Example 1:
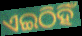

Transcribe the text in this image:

ଏଇଠିହିଁ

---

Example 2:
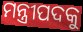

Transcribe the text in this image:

ମନ୍ତ୍ରୀପଦକୁ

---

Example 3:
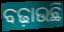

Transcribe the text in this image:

ବଢ଼ାଉଛି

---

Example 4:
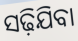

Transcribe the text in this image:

ସଢ଼ିଯିବା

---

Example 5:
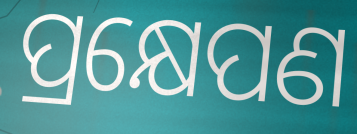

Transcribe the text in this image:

ପ୍ରକ୍ଷେପଣ